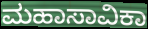
ಮಹಾಸಾವಿಕಾ